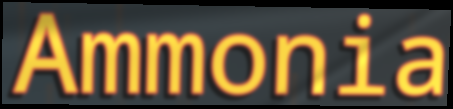
Ammonia